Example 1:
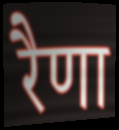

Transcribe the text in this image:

रैणा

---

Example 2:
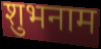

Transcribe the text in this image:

शुभनाम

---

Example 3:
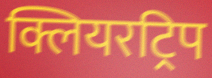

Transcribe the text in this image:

क्लियरट्रिप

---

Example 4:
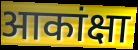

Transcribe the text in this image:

आकांक्षा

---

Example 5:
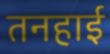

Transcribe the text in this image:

तनहाई